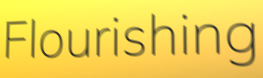
Flourishing